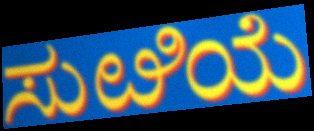
ಸುೞಿಯೆ